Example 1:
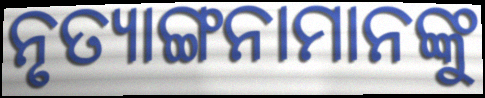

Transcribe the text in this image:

ନୃତ୍ୟାଙ୍ଗନାମାନଙ୍କୁ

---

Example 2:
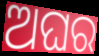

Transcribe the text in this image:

ଅଘର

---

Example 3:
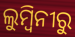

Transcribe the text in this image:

ଲୁମ୍ବିନୀରୁ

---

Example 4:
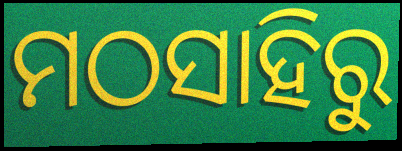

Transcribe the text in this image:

ମଠସାହିରୁ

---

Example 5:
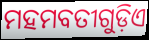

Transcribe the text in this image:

ମହମବତୀଗୁଡ଼ିଏ